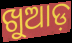
ଖୁଆଡ଼